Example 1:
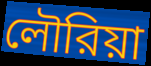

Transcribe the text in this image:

লৌরিয়া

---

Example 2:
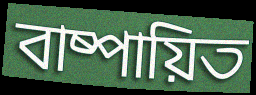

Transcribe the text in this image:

বাষ্পায়িত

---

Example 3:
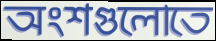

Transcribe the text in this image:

অংশগুলোতে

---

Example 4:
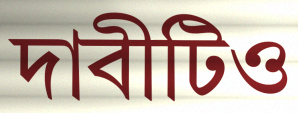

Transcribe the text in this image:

দাবীটিও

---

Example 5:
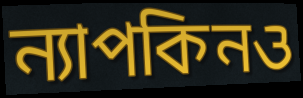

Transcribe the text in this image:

ন্যাপকিনও